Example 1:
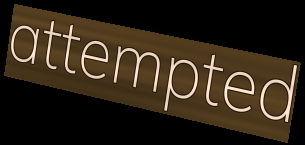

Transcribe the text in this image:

attempted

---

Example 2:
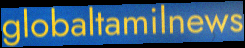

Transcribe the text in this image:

globaltamilnews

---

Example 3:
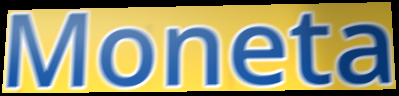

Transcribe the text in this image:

Moneta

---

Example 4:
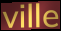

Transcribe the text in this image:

ville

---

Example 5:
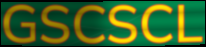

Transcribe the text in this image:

GSCSCL